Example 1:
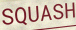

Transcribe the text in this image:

SQUASH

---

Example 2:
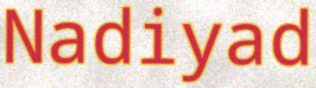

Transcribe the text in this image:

Nadiyad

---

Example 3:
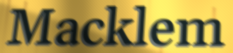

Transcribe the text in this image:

Macklem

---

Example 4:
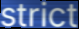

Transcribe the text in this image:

strict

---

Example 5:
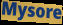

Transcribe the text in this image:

Mysore